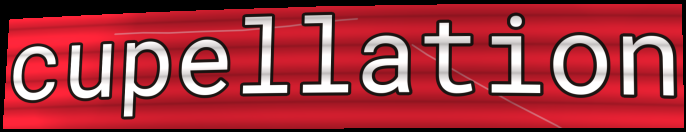
cupellation